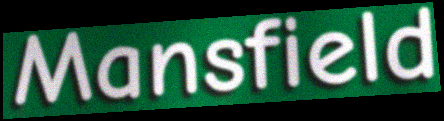
Mansfield